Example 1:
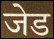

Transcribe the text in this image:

जेड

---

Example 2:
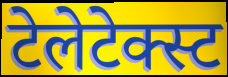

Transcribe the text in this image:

टेलेटेक्स्ट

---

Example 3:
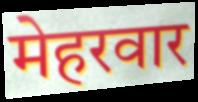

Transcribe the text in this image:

मेहरवार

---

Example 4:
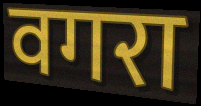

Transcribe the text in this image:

वगरा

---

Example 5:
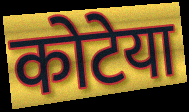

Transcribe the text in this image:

कोटेया